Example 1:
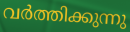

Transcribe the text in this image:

വർത്തിക്കുന്നു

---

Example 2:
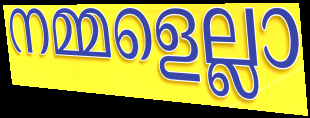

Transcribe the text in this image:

നമ്മളെല്ലാ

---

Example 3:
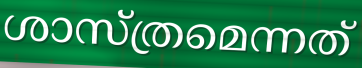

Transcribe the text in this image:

ശാസ്ത്രമെന്നത്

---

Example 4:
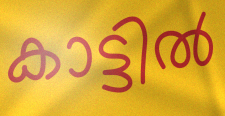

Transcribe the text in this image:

കാട്ടിൽ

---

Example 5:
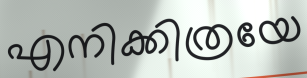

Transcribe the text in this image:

എനിക്കിത്രയേ